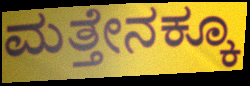
ಮತ್ತೇನಕ್ಕೂ